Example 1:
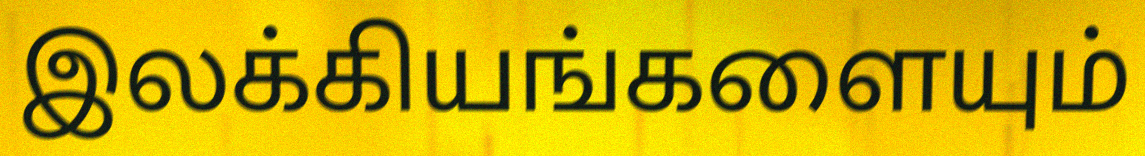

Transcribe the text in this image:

இலக்கியங்களையும்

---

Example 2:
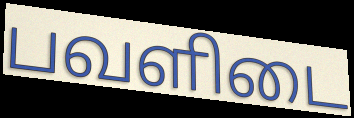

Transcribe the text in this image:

பவளிடை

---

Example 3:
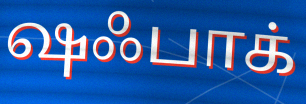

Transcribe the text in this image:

ஷஃபாக்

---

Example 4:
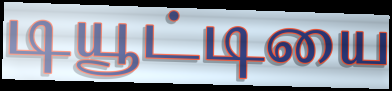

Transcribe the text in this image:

டியூட்டியை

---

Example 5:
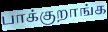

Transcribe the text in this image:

பாக்குறாங்க